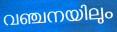
വഞ്ചനയിലും